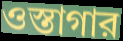
ওস্তাগার